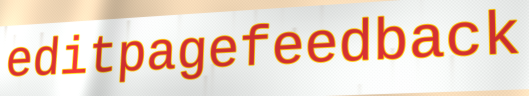
editpagefeedback